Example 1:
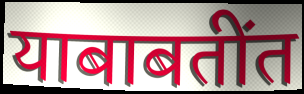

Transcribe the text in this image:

याबाबतींत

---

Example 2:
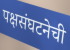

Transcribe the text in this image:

पक्षसंघटनेची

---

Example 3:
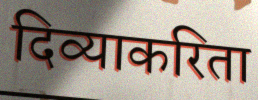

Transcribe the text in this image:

दिव्याकरिता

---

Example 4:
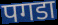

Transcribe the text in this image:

पगडा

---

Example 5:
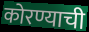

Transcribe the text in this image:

कोरण्याची